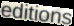
editions